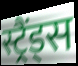
स्ट्रैंड्स